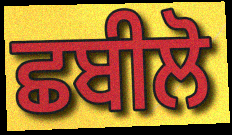
ਛਬੀਲੋ